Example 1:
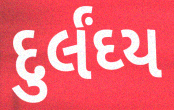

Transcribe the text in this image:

દુર્લંઘ્ય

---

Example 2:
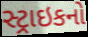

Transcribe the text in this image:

સ્ટ્રાઇકનો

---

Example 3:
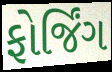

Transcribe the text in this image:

ફોર્જિંગ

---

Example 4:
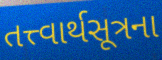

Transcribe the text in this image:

તત્ત્વાર્થસૂત્રના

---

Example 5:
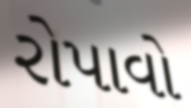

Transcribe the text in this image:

રોપાવો